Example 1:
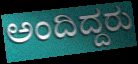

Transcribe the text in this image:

ಅಂದಿದ್ದರು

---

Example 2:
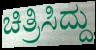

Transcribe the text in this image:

ಚಿತ್ರಿಸಿದ್ದು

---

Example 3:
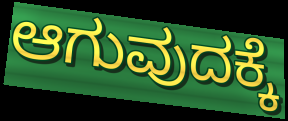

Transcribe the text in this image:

ಆಗುವುದಕ್ಕೆ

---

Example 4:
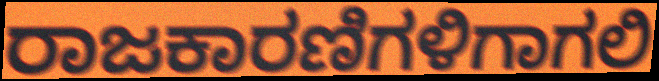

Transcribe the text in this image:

ರಾಜಕಾರಣಿಗಳಿಗಾಗಲಿ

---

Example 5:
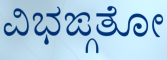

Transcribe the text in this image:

ವಿಭಙ್ಗತೋ